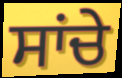
ਸਾਂਚੇ